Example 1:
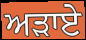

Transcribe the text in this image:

ਅੜਾਏ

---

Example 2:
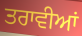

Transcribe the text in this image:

ਤਰਾਵੀਆਂ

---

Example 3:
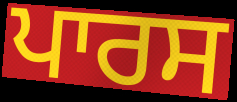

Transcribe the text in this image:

ਪਾਰਸ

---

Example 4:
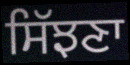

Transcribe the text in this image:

ਸਿੱਝਣਾ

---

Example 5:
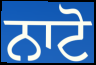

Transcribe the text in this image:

ਨਾਟੋ